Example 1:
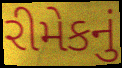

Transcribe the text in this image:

રીમેકનું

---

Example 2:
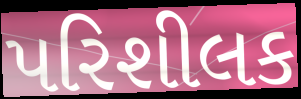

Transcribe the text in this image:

પરિશીલક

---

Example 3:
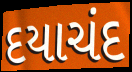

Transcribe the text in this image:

દયાચંદ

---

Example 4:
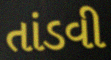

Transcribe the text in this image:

તાંડવી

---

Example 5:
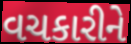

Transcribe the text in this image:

વચકારીને